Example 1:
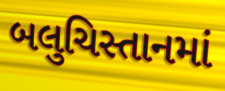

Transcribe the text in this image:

બલુચિસ્તાનમાં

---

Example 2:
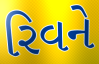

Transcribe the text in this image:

રિવને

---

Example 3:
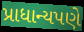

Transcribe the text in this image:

પ્રાધાન્યપણે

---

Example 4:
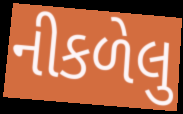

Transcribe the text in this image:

નીકળેલુ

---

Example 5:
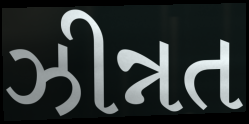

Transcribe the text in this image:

ઝીન્નત